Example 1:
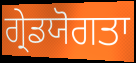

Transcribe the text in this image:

ਗ੍ਰੇਡਯੋਗਤਾ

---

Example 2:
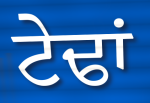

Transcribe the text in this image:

ਟੇਢਾਂ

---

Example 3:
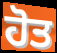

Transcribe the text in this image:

ਹੋਤ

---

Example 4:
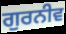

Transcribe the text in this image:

ਗੁਰਨੀਵ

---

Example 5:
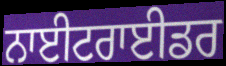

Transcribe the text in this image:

ਨਾਈਟਰਾਈਡਰ